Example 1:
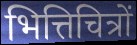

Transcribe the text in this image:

भित्तिचित्रों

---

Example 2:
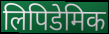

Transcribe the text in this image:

लिपिडेमिक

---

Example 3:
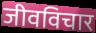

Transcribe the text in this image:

जीवविचार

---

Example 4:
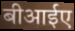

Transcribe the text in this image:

बीआईए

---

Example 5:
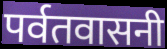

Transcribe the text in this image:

पर्वतवासनी